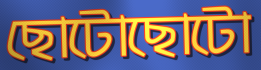
ছোটোছোটো